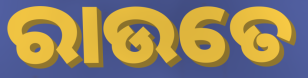
ରାଉତେ